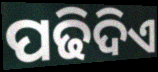
ପଢିଦିଏ